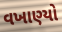
વખાણ્યો